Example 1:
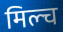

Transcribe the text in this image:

मिल्च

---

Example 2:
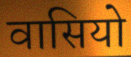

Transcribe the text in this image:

वासियो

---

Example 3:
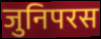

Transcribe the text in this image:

जुनिपरस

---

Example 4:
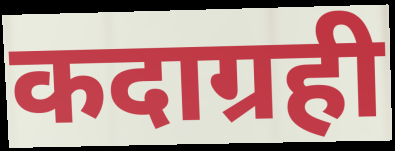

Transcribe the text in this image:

कदाग्रही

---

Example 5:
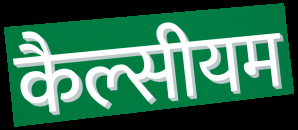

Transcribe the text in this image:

कैल्सीयम